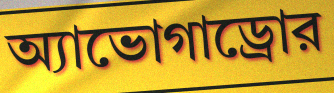
অ্যাভোগাড্রোর